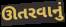
ઊતરવાનું